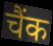
चैंक